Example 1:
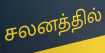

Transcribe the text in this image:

சலனத்தில்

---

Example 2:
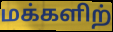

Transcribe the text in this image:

மக்களிற்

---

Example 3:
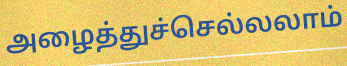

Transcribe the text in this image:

அழைத்துச்செல்லலாம்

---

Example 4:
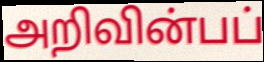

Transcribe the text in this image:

அறிவின்பப்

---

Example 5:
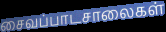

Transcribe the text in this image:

சைவப்பாடசாலைகள்